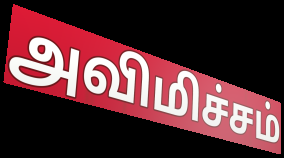
அவிமிச்சம்